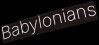
Babylonians